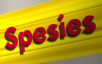
Spesies